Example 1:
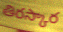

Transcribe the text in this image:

తిరస్కార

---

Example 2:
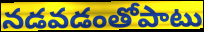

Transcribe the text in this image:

నడవడంతోపాటు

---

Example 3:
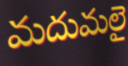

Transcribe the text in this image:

మదుమలై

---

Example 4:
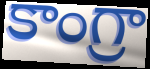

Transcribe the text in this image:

కాంగ్రా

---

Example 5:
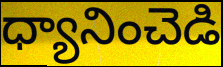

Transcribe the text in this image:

ధ్యానించెడి